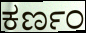
ಕರ್ಣಂ